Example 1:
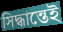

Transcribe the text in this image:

সিদ্ধান্তেই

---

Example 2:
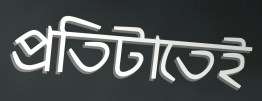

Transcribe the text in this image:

প্রতিটাতেই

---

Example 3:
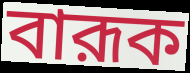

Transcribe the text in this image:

বারূক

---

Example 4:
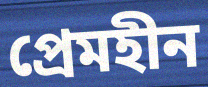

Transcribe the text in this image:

প্রেমহীন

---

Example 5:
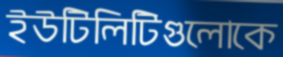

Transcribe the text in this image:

ইউটিলিটিগুলোকে